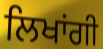
ਲਿਖਾਂਗੀ